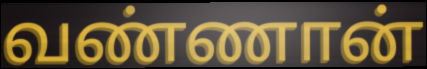
வண்ணான்